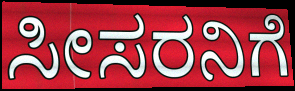
ಸೀಸರನಿಗೆ